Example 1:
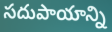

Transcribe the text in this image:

సదుపాయాన్ని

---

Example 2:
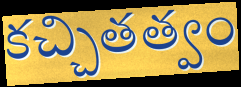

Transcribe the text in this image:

కచ్చితత్వం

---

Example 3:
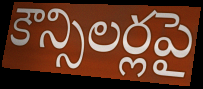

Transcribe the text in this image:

కౌన్సిలర్లపై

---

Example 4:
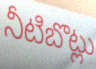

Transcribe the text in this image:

నీటిబొట్లు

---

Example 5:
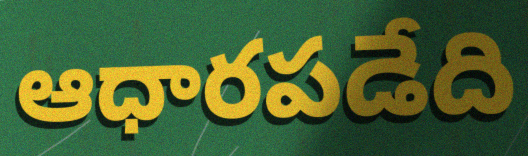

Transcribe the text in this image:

ఆధారపడేది